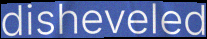
disheveled